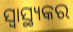
ସ୍ୱାସ୍ଥ୍ୟକର